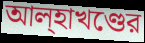
আল্হাখণ্ডের